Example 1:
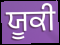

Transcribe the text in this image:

ਯੂਕੀ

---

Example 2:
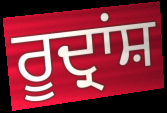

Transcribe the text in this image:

ਰੂਦ੍ਰਾਂਸ਼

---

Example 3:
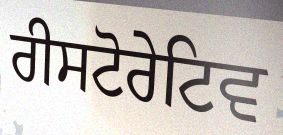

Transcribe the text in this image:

ਰੀਸਟੋਰੇਟਿਵ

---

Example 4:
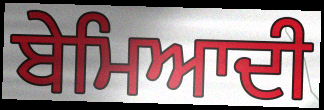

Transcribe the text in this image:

ਬੇਮਿਆਦੀ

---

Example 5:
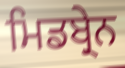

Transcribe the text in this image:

ਮਿਡਬ੍ਰੇਨ